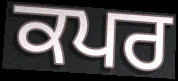
ਕਪਰ